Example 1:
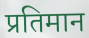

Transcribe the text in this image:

प्रतिमान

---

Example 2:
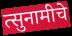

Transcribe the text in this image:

त्सुनामीचे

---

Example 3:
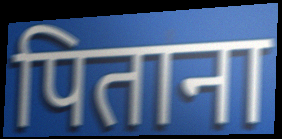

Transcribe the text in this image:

पिताना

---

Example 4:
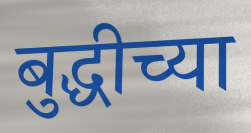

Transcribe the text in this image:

बुद्धीच्या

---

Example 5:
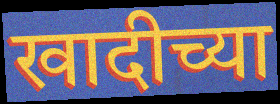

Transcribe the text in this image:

खादीच्या